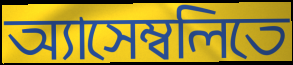
অ্যাসেম্বলিতে